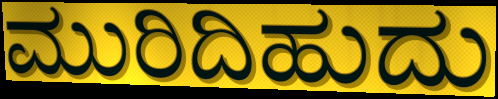
ಮುರಿದಿಹುದು